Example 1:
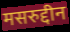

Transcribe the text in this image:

मसरुद्दीन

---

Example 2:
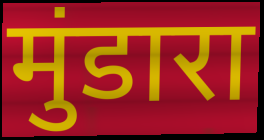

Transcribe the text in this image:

मुंडारा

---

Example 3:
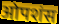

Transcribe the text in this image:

ओपशंस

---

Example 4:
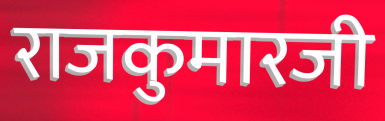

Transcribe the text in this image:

राजकुमारजी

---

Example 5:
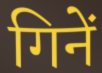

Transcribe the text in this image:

गिनें